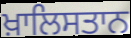
ਖ਼ਾਲਿਸਤਾਨ